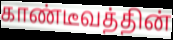
காண்டீவத்தின்